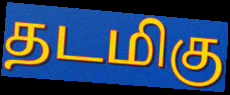
தடமிகு